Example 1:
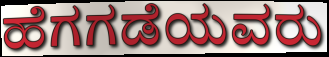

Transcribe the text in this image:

ಹೆಗಗಡೆಯವರು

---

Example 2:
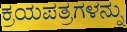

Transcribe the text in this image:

ಕ್ರಯಪತ್ರಗಳನ್ನು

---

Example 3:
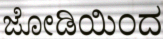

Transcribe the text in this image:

ಜೋಡಿಯಿಂದ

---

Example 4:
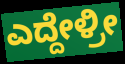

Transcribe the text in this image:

ಎದ್ದೇಳ್ರೀ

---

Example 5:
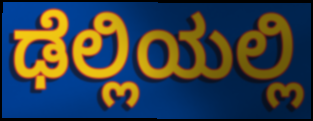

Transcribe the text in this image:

ಢೆಲ್ಲಿಯಲ್ಲಿ